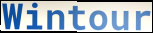
Wintour